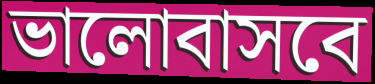
ভালোবাসবে